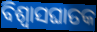
ବିଶ୍ୱାସଘାତକ